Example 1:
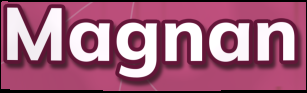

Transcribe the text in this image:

Magnan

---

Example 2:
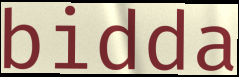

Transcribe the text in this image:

bidda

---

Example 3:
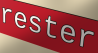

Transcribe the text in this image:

rester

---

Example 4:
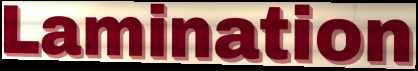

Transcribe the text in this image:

Lamination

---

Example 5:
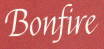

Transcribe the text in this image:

Bonfire